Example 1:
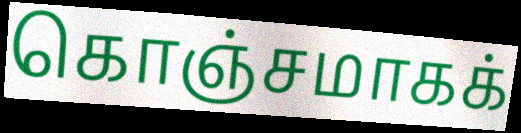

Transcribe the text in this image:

கொஞ்சமாகக்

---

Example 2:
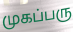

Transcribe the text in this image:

முகப்பரு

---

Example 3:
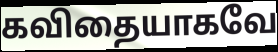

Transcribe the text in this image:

கவிதையாகவே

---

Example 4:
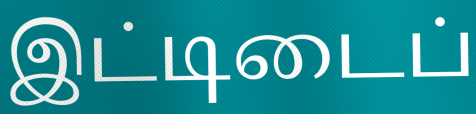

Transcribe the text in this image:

இட்டிடைப்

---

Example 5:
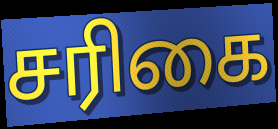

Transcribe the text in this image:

சரிகை